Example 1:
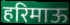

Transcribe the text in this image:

हरिमाऊ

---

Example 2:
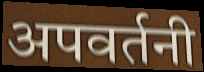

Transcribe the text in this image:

अपवर्तनी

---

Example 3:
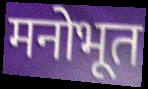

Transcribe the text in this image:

मनोभूत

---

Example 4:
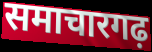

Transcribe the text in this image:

समाचारगढ़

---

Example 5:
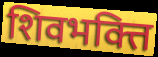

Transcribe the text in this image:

शिवभक्ति